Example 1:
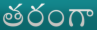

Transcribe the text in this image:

తరంగా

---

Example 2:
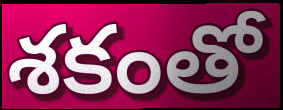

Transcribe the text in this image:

శకంతో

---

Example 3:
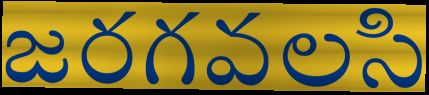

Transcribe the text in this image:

జరగవలసి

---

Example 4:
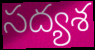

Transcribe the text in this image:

సద్యశ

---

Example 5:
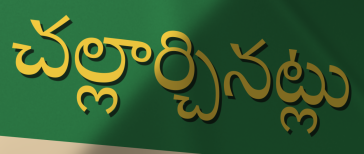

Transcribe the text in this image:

చల్లార్చినట్లు